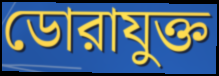
ডোরাযুক্ত